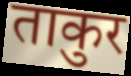
ताकुर